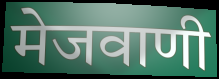
मेजवाणी